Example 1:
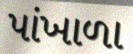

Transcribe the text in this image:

પાંખાળા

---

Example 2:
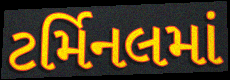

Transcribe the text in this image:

ટર્મિનલમાં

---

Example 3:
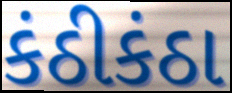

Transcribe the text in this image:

કંઠીકંઠા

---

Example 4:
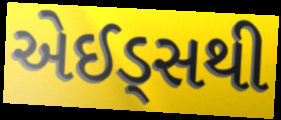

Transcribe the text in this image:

એઈડ્સથી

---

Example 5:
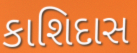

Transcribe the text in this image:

કાશિદાસ